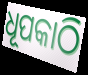
ଧୂପକାଠି